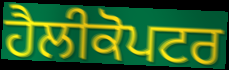
ਹੈਲੀਕੋਪਟਰ